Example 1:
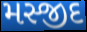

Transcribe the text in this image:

મસ્જીદ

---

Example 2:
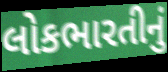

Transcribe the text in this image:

લોકભારતીનું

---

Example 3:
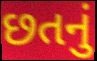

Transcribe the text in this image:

છતનું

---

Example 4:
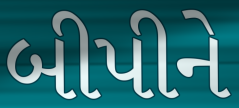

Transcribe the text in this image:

બીપીને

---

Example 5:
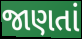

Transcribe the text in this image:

જાણતાં